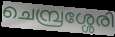
ചെമ്പ്രശ്ശേരി